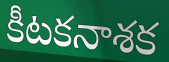
కీటకనాశక